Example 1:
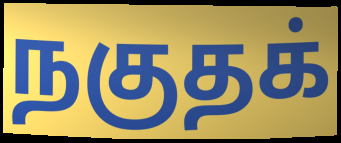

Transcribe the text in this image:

நகுதக்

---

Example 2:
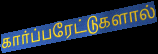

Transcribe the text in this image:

கார்ப்பரேட்டுகளால்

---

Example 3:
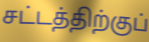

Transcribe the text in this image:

சட்டத்திற்குப்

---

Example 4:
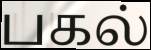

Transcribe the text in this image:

பகல்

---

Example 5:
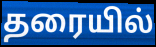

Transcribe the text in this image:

தரையில்